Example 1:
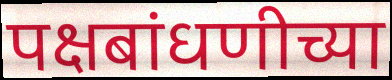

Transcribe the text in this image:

पक्षबांधणीच्या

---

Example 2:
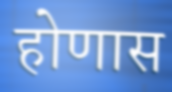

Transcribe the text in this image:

होणास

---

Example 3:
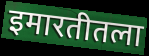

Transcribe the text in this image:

इमारतीतला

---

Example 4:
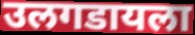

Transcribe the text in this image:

उलगडायला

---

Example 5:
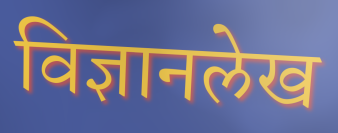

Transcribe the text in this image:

विज्ञानलेख